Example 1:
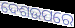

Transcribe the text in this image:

ଦେଶଉପରେ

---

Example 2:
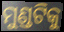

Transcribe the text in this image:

ମୁଣ୍ଡଟିକୁ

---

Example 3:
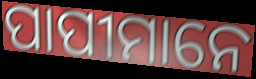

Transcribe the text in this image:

ପାପୀମାନେ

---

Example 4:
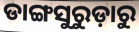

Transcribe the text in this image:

ଡାଙ୍ଗସୁରୁଡ଼ାରୁ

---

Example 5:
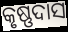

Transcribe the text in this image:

କୃଷ୍ଣଦାସ